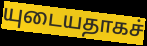
யுடையதாகச்